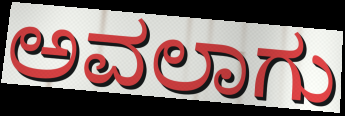
ಅವಲಾಗು